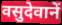
वसुदेवानें